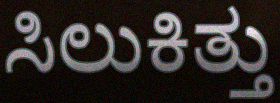
ಸಿಲುಕಿತ್ತು